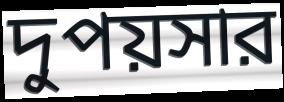
দুপয়সার